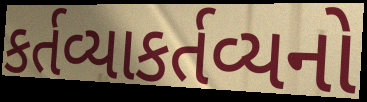
કર્તવ્યાકર્તવ્યનો